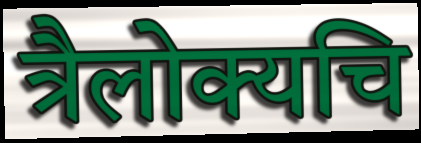
त्रैलोक्यचि